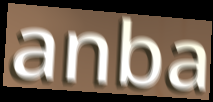
anba